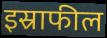
इस्राफील